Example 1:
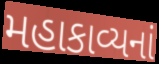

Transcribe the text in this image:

મહાકાવ્યનાં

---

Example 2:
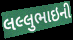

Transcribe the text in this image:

લલ્લુભાઇની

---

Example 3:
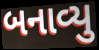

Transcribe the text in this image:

બનાવ્યુ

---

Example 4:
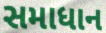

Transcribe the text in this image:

સમાધાન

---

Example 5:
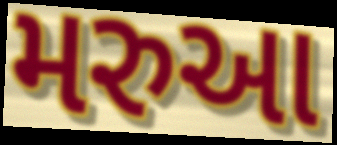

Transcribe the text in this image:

મરુઆ